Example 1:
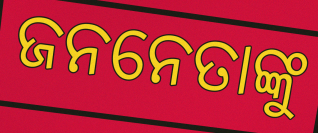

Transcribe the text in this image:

ଜନନେତାଙ୍କୁ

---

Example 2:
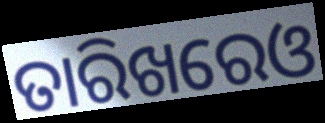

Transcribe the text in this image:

ତାରିଖରେଓ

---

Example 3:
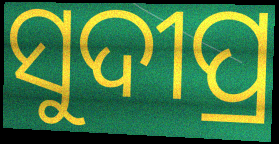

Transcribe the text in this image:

ସୁଦୀପ୍ର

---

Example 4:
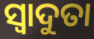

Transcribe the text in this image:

ସ୍ୱାଦୁତା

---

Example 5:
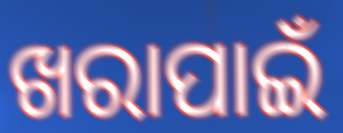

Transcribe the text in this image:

ଖରାପାଇଁ